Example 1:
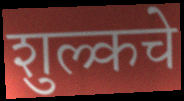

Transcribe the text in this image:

शुल्कचे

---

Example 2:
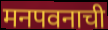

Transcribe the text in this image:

मनपवनाची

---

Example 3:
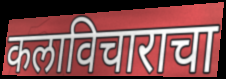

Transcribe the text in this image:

कलाविचाराचा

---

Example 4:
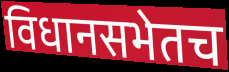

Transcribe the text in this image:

विधानसभेतच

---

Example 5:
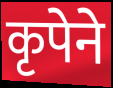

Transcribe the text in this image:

कृपेने